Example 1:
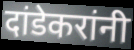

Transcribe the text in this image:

दांडेकरांनी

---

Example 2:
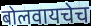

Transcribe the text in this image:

बोलवायचेच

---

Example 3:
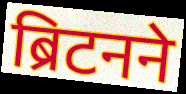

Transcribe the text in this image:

ब्रिटनने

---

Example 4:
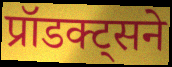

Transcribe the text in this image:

प्रॉडक्ट्सने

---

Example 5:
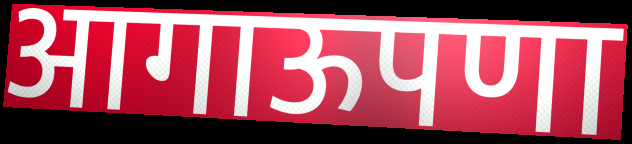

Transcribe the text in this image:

आगाऊपणा